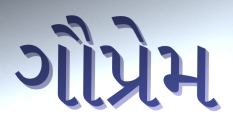
ગૌપ્રેમ